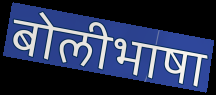
बोलीभाषा